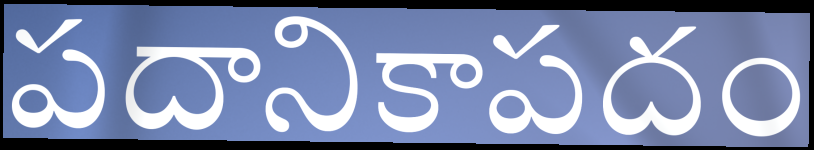
పదానికాపదం